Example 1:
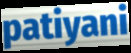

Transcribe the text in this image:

patiyani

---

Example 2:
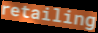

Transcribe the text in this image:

retailing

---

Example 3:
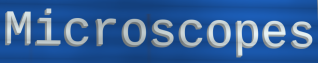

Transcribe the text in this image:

Microscopes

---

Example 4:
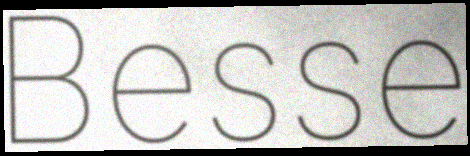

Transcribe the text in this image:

Besse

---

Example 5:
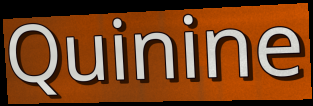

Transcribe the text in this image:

Quinine